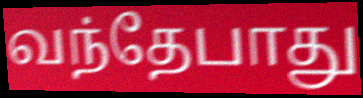
வந்தேபாது